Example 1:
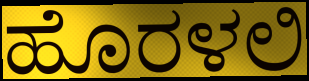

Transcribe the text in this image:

ಹೊರಳಲಿ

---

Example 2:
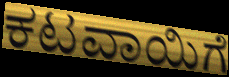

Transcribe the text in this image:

ಕಟವಾಯಿಗೆ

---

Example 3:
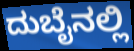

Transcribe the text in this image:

ದುಬೈನಲ್ಲಿ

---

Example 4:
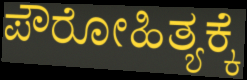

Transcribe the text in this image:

ಪೌರೋಹಿತ್ಯಕ್ಕೆ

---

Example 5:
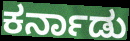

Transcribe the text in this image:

ಕರ್ನಾಡು